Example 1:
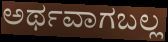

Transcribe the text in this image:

ಅರ್ಥವಾಗಬಲ್ಲ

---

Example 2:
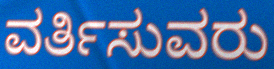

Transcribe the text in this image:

ವರ್ತಿಸುವರು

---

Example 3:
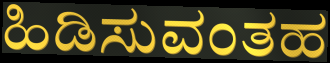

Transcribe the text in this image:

ಹಿಡಿಸುವಂತಹ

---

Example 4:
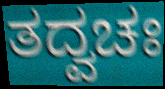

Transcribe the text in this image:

ತದ್ವಚಃ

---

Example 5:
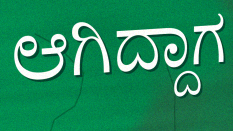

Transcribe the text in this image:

ಆಗಿದ್ದಾಗ